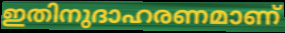
ഇതിനുദാഹരണമാണ്